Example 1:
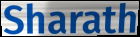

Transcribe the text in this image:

Sharath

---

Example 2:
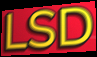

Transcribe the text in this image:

LSD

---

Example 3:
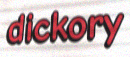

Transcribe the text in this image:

dickory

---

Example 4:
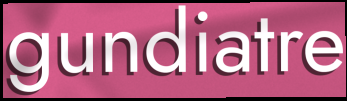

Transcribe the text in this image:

gundiatre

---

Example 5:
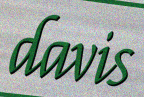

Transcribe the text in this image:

davis